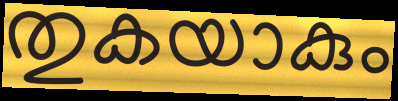
തുകയാകും